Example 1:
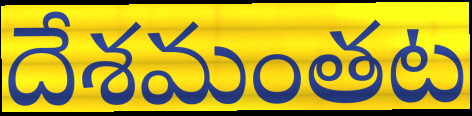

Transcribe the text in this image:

దేశమంతట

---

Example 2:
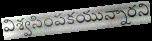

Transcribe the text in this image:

విశ్వసింపకయున్నారని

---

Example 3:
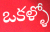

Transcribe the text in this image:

ఒకళ్ళో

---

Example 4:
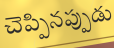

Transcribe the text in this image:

చెప్పినప్పుడు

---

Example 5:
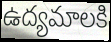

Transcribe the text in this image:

ఉద్యమాలకి